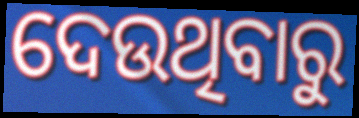
ଦେଉଥିବାରୁ